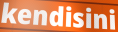
kendisini